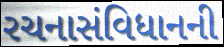
રચનાસંવિધાનની